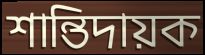
শান্তিদায়ক